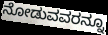
ನೋಡುವವರನ್ನೂ